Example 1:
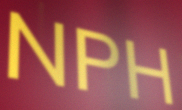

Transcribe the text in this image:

NPH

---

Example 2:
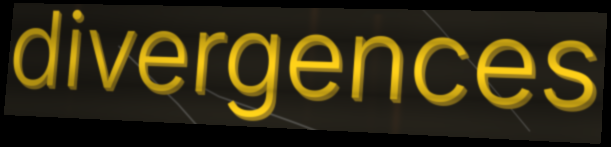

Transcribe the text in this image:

divergences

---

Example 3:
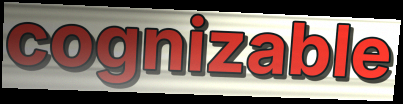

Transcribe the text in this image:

cognizable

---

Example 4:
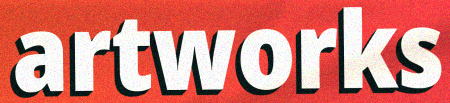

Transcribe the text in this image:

artworks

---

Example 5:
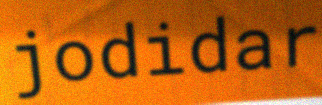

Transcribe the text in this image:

jodidar